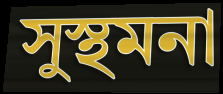
সুস্থমনা